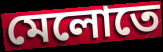
মেলোতে